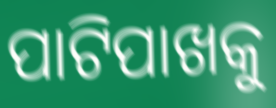
ପାଟିପାଖକୁ